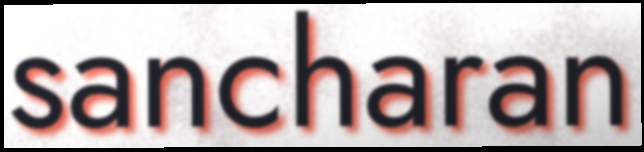
sancharan